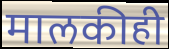
मालकीही